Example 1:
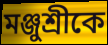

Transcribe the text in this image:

মঞ্জুশ্রীকে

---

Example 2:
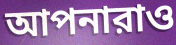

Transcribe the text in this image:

আপনারাও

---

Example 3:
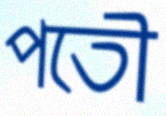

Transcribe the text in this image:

পতৌ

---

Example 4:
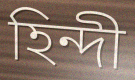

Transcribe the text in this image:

হিন্দী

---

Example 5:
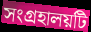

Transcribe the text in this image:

সংগ্রহালয়টি